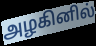
அழகினில்